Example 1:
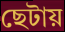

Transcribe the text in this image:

ছেটায়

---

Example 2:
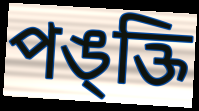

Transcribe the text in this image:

পঙ্‌ক্তি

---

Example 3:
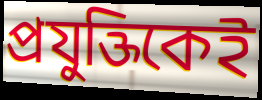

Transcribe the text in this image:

প্রযুক্তিকেই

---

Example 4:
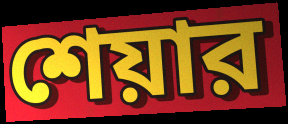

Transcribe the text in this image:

শেয়ার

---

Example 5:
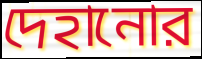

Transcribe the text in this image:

দেহানোর